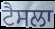
ਟੈਸਲਾ